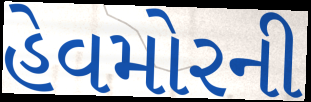
હેવમોરની